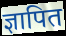
ज्ञापित